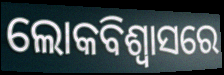
ଲୋକବିଶ୍ୱାସରେ